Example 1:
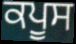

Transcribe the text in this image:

ਕਪੂਸ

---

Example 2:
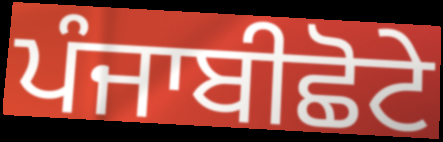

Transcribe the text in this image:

ਪੰਜਾਬੀਛੋਟੇ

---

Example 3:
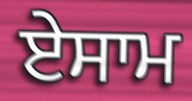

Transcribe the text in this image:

ਏਸਾਮ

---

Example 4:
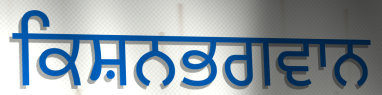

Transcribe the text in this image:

ਕਿਸ਼ਨਭਗਵਾਨ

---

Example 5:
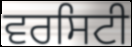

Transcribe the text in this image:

ਵਰਸਿਟੀ